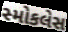
સ્મોકલેસ